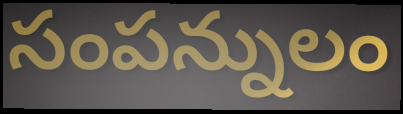
సంపన్నులం